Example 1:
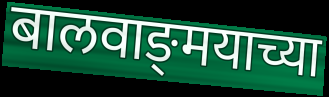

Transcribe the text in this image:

बालवाङ्‌मयाच्या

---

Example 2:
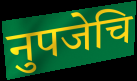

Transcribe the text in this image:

नुपजेचि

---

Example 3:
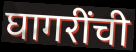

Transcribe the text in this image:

घागरींची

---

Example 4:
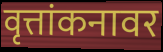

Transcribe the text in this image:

वृत्तांकनावर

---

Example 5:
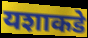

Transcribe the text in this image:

यशाकडे